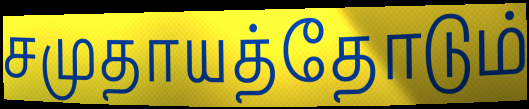
சமுதாயத்தோடும்